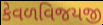
કેવળવિજયજી